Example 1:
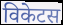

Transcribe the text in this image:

विकेटस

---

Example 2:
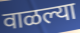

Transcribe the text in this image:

वाळल्या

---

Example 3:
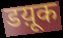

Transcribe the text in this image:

डय़ूक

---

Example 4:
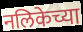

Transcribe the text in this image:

नलिकेच्या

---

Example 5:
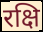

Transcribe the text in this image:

रक्षि